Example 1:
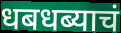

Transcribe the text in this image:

धबधब्याचं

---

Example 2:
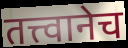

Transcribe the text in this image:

तत्त्वानेच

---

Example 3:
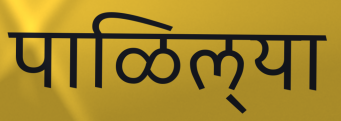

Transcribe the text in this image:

पाळिल्या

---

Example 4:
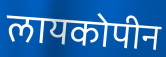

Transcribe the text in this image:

लायकोपीन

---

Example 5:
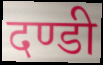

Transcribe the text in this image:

दण्डी